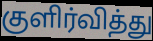
குளிர்வித்து